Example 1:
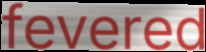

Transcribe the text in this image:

fevered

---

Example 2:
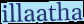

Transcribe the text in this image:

illaatha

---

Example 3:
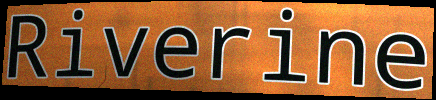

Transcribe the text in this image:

Riverine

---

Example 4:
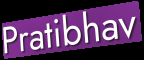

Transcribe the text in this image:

Pratibhav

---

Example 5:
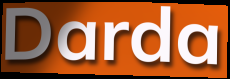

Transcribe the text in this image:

Darda